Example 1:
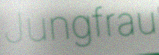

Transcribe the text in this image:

Jungfrau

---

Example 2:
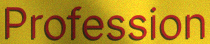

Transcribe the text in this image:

Profession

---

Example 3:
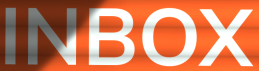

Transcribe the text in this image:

INBOX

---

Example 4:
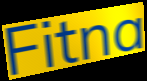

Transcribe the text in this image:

Fitna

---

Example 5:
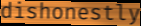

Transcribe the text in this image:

dishonestly